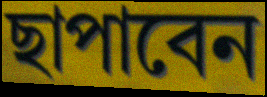
ছাপাবেন